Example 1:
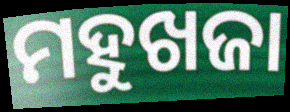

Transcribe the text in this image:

ମହୁଖଜା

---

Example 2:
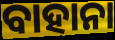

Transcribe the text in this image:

ବାହାନା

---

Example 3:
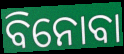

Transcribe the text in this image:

ବିନୋବା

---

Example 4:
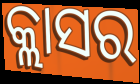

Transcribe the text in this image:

କ୍ଲାସର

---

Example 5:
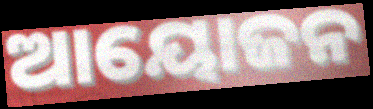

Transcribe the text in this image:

ଆୟୋଜନ